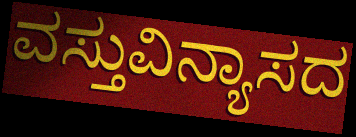
ವಸ್ತುವಿನ್ಯಾಸದ